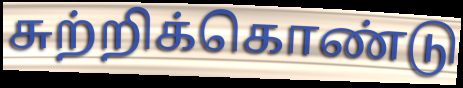
சுற்றிக்கொண்டு